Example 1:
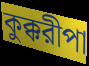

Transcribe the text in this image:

কুক্করীপা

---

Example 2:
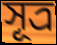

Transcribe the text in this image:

সূত্র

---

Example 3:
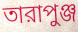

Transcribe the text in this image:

তারাপুঞ্জ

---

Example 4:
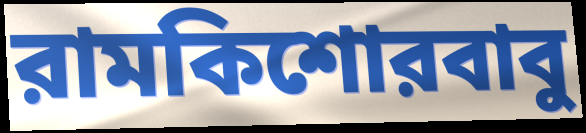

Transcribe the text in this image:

রামকিশোরবাবু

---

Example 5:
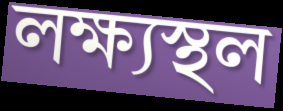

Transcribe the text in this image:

লক্ষ্যস্থল